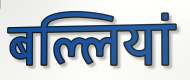
बल्लियां